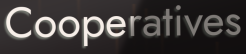
Cooperatives